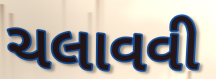
ચલાવવી